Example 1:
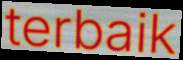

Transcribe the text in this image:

terbaik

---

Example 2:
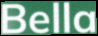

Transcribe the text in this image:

Bella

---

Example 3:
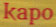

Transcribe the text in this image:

kapo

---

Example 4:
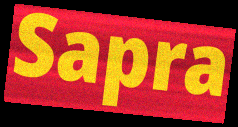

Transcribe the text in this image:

Sapra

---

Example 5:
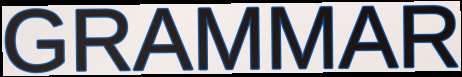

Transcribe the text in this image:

GRAMMAR